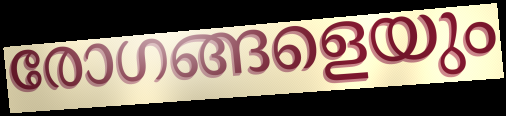
രോഗങ്ങളെയും